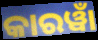
କାରୱାଁ